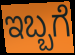
ಇಬ್ಬಗೆ